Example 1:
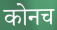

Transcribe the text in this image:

कोनच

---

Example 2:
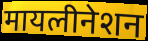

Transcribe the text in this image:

मायलीनेशन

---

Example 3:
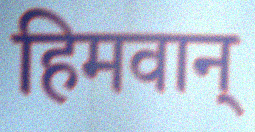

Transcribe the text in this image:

हिमवान्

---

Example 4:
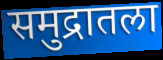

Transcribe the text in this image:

समुद्रातला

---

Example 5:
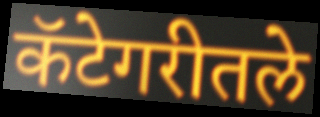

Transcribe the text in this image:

कॅटेगरीतले